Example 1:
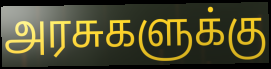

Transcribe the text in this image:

அரசுகளுக்கு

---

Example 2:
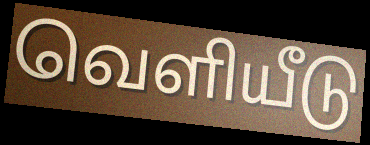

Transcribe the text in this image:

வெளியீடு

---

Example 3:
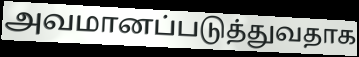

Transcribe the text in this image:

அவமானப்படுத்துவதாக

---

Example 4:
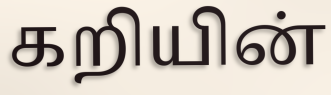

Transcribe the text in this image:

கறியின்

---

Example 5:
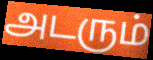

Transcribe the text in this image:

அடரும்